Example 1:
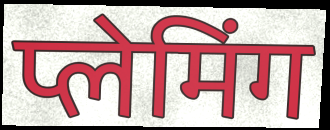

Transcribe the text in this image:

प्लेमिंग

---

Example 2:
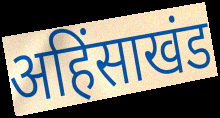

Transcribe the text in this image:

अहिंसाखंड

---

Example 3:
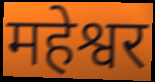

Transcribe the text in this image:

महेश्वर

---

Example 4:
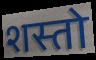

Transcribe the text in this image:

शस्तो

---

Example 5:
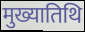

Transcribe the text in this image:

मुख्यातिथि